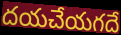
దయచేయగదే